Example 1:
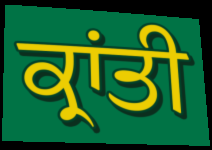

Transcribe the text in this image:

ਕ੍ਰਾਂਤੀ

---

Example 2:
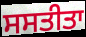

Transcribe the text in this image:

ਸਸਤੀਤਾ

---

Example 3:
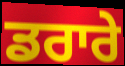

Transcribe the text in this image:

ਡਰਾਰੇ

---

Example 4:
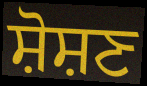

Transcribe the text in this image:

ਸ਼ੋਸ਼ਣ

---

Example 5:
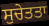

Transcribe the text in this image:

ਸੁਚੇਤਤਾ